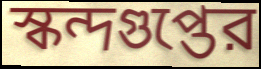
স্কন্দগুপ্তের